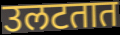
उलटतात